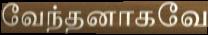
வேந்தனாகவே